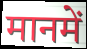
मानमें